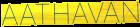
AATHAVAN